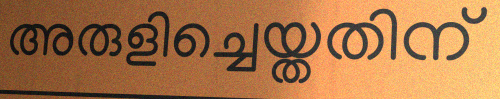
അരുളിച്ചെയ്തതിന്